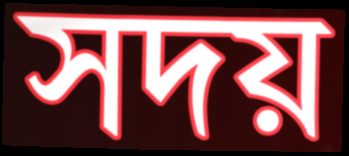
সদয়